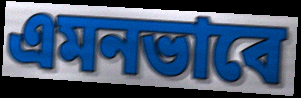
এমনভাবে